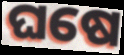
ଘଷେ